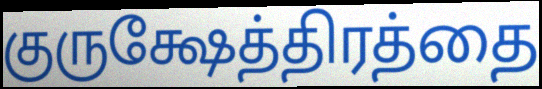
குருக்ஷேத்திரத்தை